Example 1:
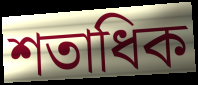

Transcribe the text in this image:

শতাধিক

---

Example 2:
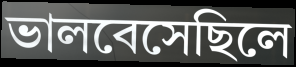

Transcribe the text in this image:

ভালবেসেছিলে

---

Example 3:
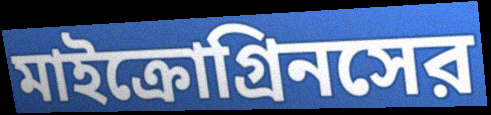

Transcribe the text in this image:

মাইক্রোগ্রিনসের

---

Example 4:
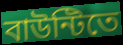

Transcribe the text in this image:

বাউন্টিতে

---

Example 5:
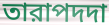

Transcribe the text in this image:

তারাপদদা